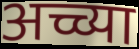
अच्च्या